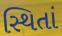
સ્થિતાં